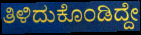
ತಿಳಿದುಕೊಂಡಿದ್ದೇ